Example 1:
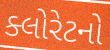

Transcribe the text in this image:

ક્લોરેટનો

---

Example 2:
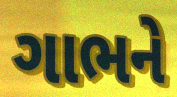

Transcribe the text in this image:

ગાભને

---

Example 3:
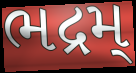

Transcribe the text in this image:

ભદ્રમ્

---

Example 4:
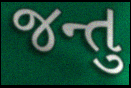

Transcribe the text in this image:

જન્તુ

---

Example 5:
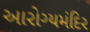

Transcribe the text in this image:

આરોગ્યમંદિર